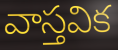
వాస్తవిక